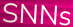
SNNs